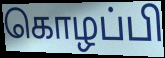
கொழப்பி